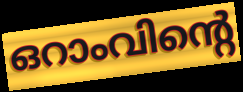
ഒറാംവിന്റെ